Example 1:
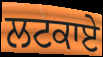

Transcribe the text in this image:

ਲਟਕਾਏ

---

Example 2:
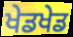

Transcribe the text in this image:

ਖੇਡਖੇਡ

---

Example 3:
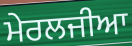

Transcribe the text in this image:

ਮੇਰਲਜੀਆ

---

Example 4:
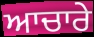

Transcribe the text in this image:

ਆਚਾਰੇ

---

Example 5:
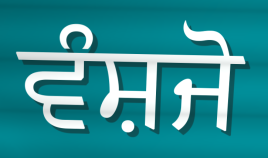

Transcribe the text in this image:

ਵੰਸ਼ਜੋ